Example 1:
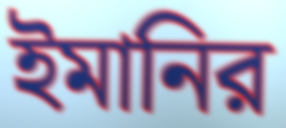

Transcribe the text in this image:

ইমানির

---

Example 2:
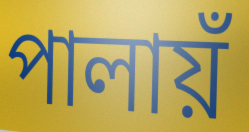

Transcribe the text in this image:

পালায়ঁ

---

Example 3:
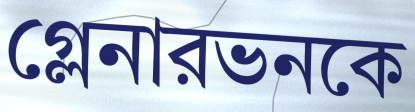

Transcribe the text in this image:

গ্লেনারভনকে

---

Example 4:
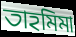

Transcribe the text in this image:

তাহমিমা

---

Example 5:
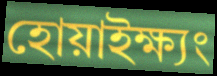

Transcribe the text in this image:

হোয়াইক্ষ্যং